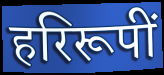
हरिरूपीं